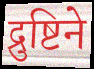
द्रुष्टिने